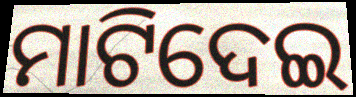
ମାଟିଦେଇ